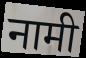
नामी